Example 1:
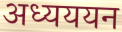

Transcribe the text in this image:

अध्यययन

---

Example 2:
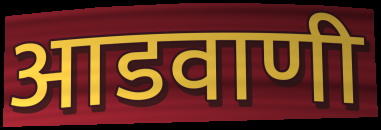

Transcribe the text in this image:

आडवाणी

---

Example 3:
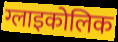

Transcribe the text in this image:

ग्लाइकोलिक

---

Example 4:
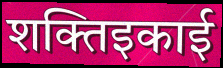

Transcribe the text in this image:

शक्तिइकाई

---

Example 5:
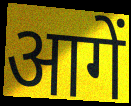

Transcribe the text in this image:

आगें